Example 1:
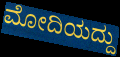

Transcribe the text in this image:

ಮೋದಿಯದ್ದು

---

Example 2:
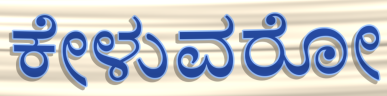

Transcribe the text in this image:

ಕೇಳುವರೋ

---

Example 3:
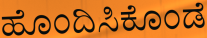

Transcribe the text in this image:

ಹೊಂದಿಸಿಕೊಂಡೆ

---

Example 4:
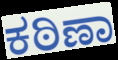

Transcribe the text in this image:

ಕಠಿಣಾ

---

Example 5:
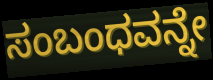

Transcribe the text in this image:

ಸಂಬಂಧವನ್ನೇ